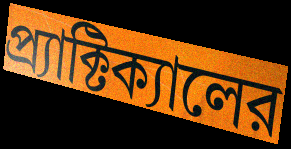
প্র্যাক্টিক্যালের